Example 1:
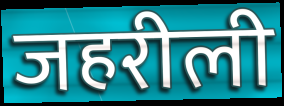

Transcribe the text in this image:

जहरीली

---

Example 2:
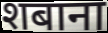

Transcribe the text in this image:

शबाना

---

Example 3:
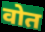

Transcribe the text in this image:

वोत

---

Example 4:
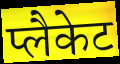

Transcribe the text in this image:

प्लैकेट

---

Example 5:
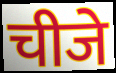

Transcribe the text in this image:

चीजे